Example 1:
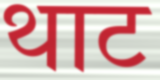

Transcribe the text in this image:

थाट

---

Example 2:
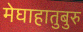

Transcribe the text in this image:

मेघाहातुबुरु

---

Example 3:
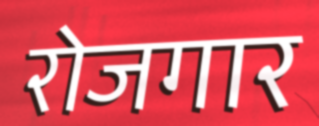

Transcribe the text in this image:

रोजगार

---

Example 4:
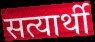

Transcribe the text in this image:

सत्यार्थी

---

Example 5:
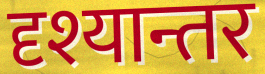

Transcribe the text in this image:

दृश्यान्तर